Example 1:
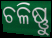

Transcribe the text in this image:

ଚଳିଷ୍ଣୁ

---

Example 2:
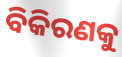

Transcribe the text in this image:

ବିକିରଣକୁ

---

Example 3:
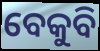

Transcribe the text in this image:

ବେକୁବି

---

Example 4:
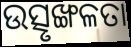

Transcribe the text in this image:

ଉତ୍ସୃଙ୍ଖଳତା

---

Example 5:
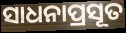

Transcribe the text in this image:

ସାଧନାପ୍ରସୂତ